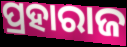
ପ୍ରହାରାଜ